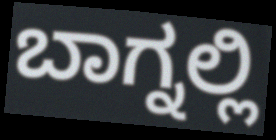
ಬಾಗ್ನಲ್ಲಿ